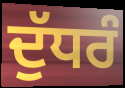
ਦੁੱਧਰੰ